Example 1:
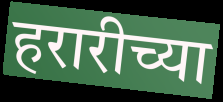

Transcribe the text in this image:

हरारीच्या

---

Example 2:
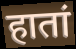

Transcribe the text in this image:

हातां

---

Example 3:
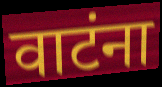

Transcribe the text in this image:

वाटंना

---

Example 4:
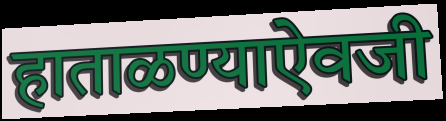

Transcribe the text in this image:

हाताळण्याऐवजी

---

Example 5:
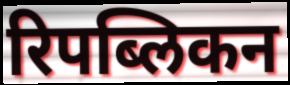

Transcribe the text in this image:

रिपब्लिकन